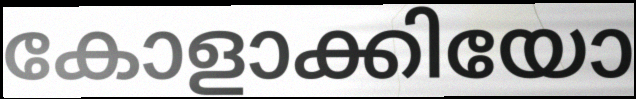
കോളാക്കിയോ